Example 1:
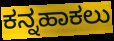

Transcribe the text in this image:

ಕನ್ನಹಾಕಲು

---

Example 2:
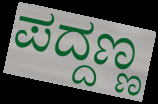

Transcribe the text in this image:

ಪದ್ದಣ್ಣ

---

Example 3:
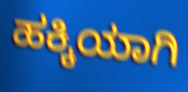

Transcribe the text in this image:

ಹಕ್ಕಿಯಾಗಿ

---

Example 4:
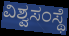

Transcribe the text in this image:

ವಿಶ್ವಸಂಸ್ಥೆ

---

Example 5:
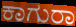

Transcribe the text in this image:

ಕಾಗುರಾ